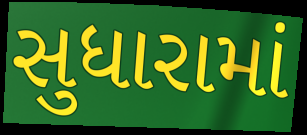
સુધારામાં